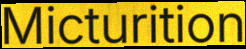
Micturition